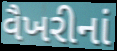
વૈખરીનાં